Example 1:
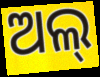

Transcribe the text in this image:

ଅଲ୍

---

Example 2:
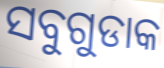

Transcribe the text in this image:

ସବୁଗୁଡାକ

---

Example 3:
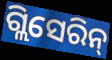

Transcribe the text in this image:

ଗ୍ଲିସେରିନ୍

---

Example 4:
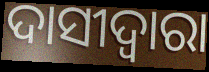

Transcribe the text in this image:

ଦାସୀଦ୍ୱାରା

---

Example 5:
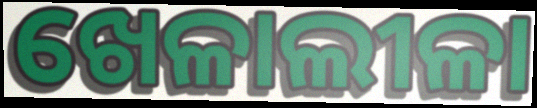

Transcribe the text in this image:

ଖେଳାଲୀଳା